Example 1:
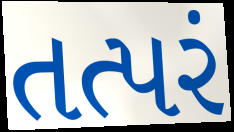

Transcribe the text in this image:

તત્પરં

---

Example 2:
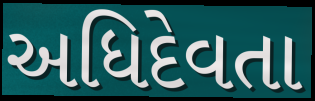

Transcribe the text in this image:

અધિદેવતા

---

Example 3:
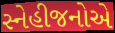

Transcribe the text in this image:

સ્નેહીજનોએ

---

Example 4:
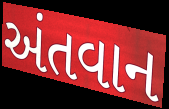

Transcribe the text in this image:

અંતવાન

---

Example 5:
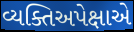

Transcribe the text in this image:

વ્યક્તિઅપેક્ષાએ